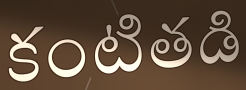
కంటితడి